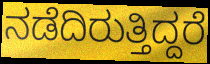
ನಡೆದಿರುತ್ತಿದ್ದರೆ